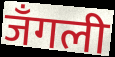
जँगली